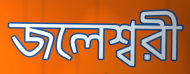
জলেশ্বরী